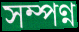
সম্পণ্ন